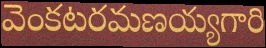
వెంకటరమణయ్యగారి